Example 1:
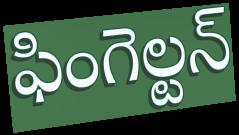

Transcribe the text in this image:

ఫింగెల్టన్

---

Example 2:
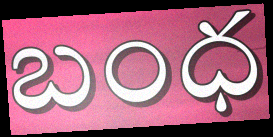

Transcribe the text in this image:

బంధ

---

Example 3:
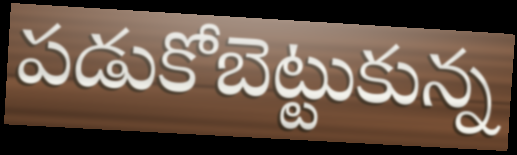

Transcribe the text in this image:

పడుకోబెట్టుకున్న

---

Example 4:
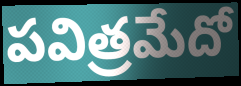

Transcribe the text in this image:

పవిత్రమేదో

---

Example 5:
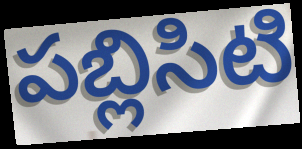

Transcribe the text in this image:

పబ్లిసిటి